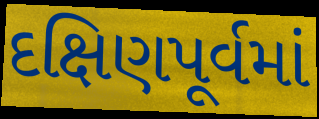
દક્ષિણપૂર્વમાં